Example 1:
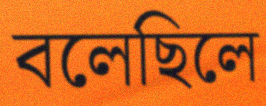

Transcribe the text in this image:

বলেছিলে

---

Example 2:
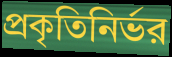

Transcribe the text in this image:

প্রকৃতিনির্ভর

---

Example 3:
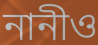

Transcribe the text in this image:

নানীও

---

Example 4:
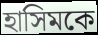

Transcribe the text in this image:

হাসিমকে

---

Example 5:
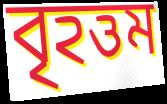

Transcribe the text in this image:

বৃহত্তম